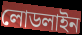
লোডলাইন